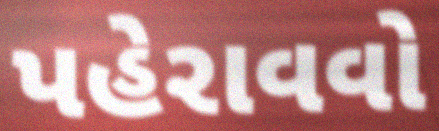
પહેરાવવો